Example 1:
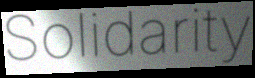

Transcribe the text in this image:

Solidarity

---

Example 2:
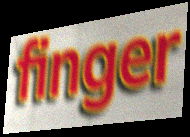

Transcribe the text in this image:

finger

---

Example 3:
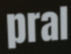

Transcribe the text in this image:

pral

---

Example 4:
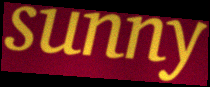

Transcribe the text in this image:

sunny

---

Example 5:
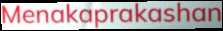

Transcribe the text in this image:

Menakaprakashan